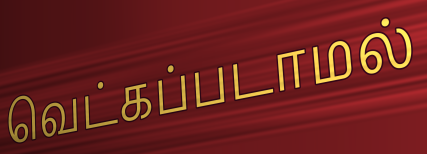
வெட்கப்படாமல்